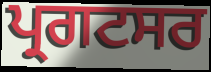
ਪ੍ਰਗਟਸਰ